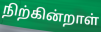
நிற்கின்றாள்